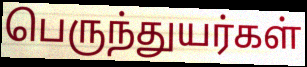
பெருந்துயர்கள்